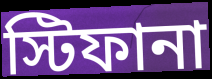
স্টিফানা